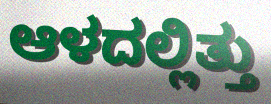
ಆಳದಲ್ಲಿತ್ತು